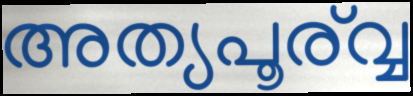
അത്യപൂര്വ്വ